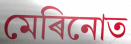
মেৰিনোত